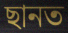
ছানত